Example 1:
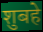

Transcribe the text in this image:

शुबहे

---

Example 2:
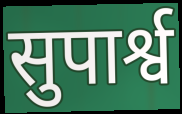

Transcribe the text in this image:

सुपार्श्व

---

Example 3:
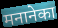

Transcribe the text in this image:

मनानेका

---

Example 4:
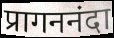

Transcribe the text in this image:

प्रागननंदा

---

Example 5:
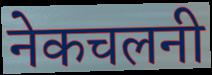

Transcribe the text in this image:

नेकचलनी